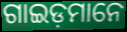
ଗାଇଡ଼ମାନେ